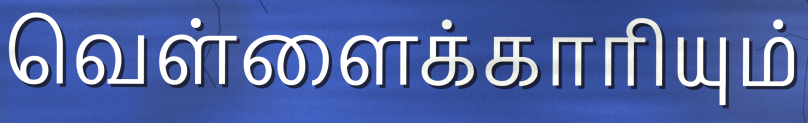
வெள்ளைக்காரியும்